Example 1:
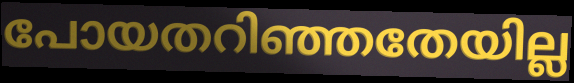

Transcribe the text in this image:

പോയതറിഞ്ഞതേയില്ല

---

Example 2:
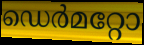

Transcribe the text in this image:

ഡെർമറ്റോ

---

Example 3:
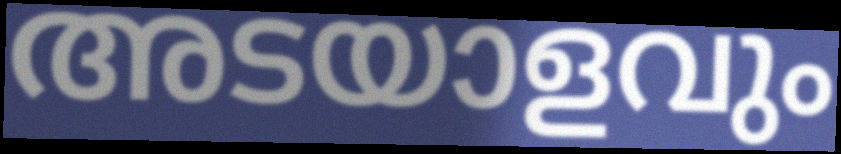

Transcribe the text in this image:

അടയാളവും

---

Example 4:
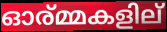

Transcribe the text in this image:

ഓര്മ്മകളില്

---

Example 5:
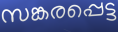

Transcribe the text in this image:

സങ്കരപ്പെട്ട